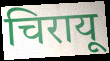
चिरायू